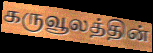
கருவூலத்தின்